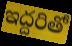
ఇద్దరితో